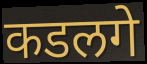
कडलगे